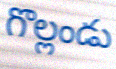
గొల్లండు